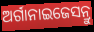
ଅର୍ଗାନାଇଜେସନ୍ରୁ